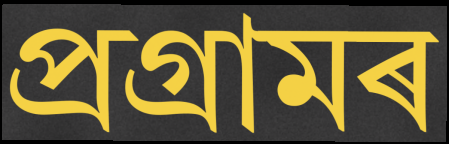
প্ৰগ্ৰামৰ